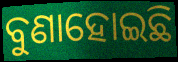
ବୁଣାହୋଇଛି